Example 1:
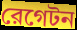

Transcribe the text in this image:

রেগেটন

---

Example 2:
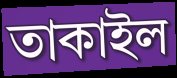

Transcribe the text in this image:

তাকাইল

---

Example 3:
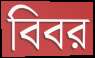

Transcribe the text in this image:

বিবর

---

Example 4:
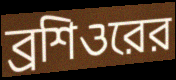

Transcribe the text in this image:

ব্রশিওরের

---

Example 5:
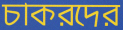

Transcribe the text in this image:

চাকরদের